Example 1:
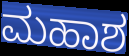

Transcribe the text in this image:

ಮಹಾಶ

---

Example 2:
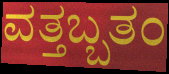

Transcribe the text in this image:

ವತ್ತಬ್ಬತಂ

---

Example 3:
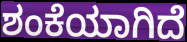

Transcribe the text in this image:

ಶಂಕೆಯಾಗಿದೆ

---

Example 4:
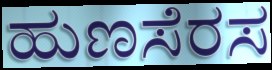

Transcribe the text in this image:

ಹುಣಸೆರಸ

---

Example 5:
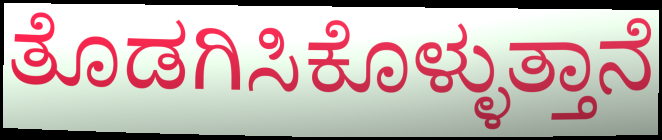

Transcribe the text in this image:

ತೊಡಗಿಸಿಕೊಳ್ಳುತ್ತಾನೆ